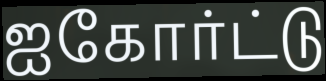
ஐகோர்ட்டு